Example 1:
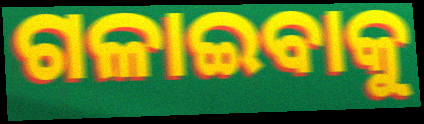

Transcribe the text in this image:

ଗଳାଇବାକୁ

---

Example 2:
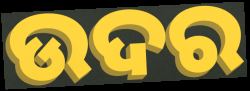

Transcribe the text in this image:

ଉଦର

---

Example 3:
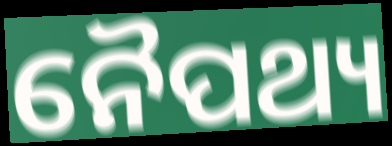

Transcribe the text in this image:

ନୈପଥ୍ୟ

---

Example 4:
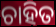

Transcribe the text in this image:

ଚାହିତ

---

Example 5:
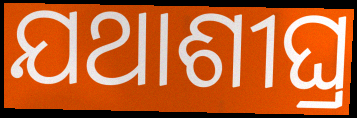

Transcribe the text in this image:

ଯଥାଶୀଘ୍ର